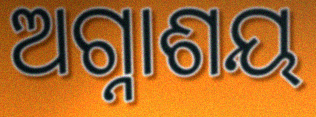
ଅଗ୍ନାଶୟ